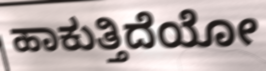
ಹಾಕುತ್ತಿದೆಯೋ